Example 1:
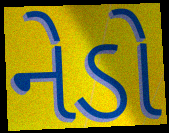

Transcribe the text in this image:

નેડો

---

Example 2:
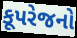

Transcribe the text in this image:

કૂપરેજનો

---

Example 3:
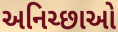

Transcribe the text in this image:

અનિચ્છાઓ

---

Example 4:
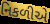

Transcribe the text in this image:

નિકળીએ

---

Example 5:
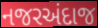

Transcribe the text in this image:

નજરઅંદાજ